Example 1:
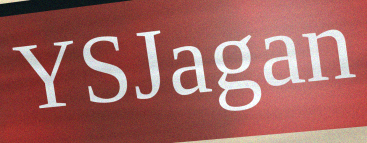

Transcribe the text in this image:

YSJagan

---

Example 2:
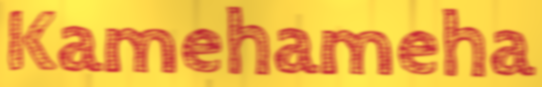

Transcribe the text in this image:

Kamehameha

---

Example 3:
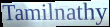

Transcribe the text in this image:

Tamilnathy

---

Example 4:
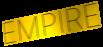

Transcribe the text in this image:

EMPIRE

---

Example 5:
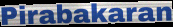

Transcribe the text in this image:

Pirabakaran